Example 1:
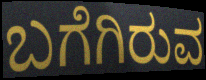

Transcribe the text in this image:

ಬಗೆಗಿರುವ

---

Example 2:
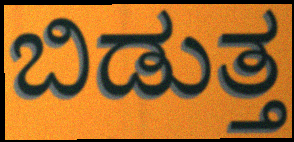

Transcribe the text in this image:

ಬಿಡುತ್ತ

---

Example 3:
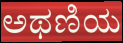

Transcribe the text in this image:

ಅಥಣಿಯ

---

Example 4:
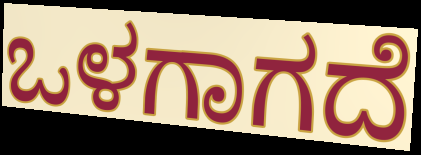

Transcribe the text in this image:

ಒಳಗಾಗದೆ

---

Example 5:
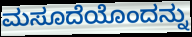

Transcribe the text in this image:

ಮಸೂದೆಯೊಂದನ್ನು